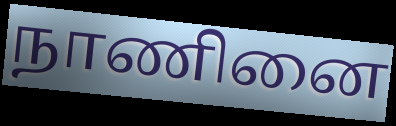
நாணினை